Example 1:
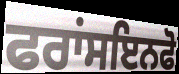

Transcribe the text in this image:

ਫਰਾਂਸਇਨਫੋ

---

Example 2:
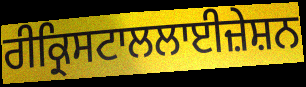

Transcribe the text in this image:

ਰੀਕ੍ਰਿਸਟਾਲਲਾਈਜ਼ੇਸ਼ਨ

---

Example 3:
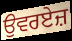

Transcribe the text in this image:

ਉਵਰਏਜ਼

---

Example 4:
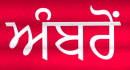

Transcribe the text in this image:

ਅੰਬਰੋਂ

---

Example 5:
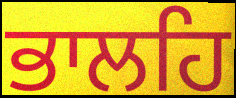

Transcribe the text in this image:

ਭਾਲਹਿ